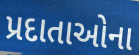
પ્રદાતાઓના